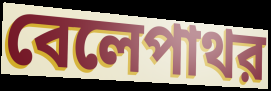
বেলেপাথর